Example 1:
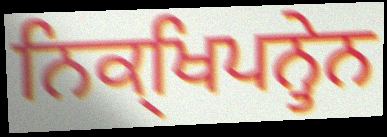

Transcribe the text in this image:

ਨਿਕ੍ਖਿਪਨ੍ਤੇਨ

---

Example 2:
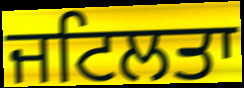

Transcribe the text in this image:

ਜਟਿਲਤਾ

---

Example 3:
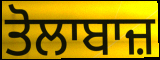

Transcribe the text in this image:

ਤੋਲਾਬਾਜ਼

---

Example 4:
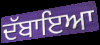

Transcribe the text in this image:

ਦੱਬਾਇਆ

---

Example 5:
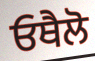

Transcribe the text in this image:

ਓਥੈਲੋ